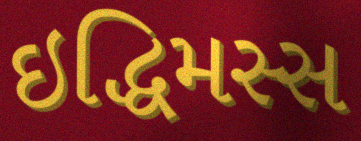
ઇદ્ધિમસ્સ